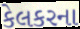
કેલકરના